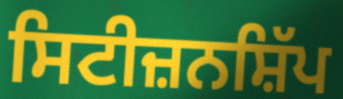
ਸਿਟੀਜ਼ਨਸ਼ਿੱਪ